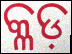
କ୍ଳଡ଼